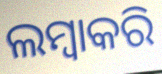
ଲମ୍ବାକରି